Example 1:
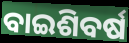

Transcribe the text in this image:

ବାଇଶିବର୍ଷ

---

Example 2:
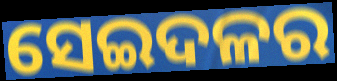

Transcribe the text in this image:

ସେଇଦଳର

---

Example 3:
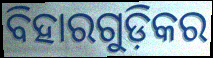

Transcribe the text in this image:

ବିହାରଗୁଡ଼ିକର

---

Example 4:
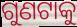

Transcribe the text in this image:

ଗୁଣଟାକୁ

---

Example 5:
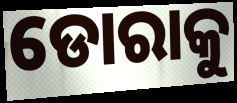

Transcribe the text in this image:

ଡୋରାକୁ